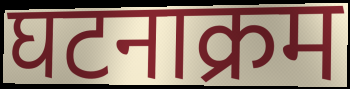
घटनाक्रम